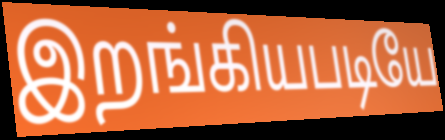
இறங்கியபடியே